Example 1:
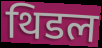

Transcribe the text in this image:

थिडल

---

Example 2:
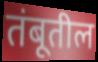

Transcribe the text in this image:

तंबूतील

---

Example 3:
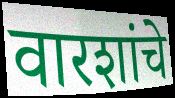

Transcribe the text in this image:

वारशांचे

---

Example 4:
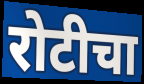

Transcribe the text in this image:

रोटीचा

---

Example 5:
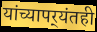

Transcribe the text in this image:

यांच्यापर्यंतही